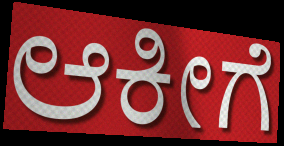
ಆಕೀಗೆ